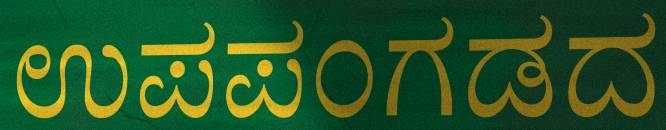
ಉಪಪಂಗಡದ